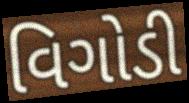
વિગોડી